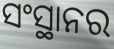
ସଂସ୍ଥାନର